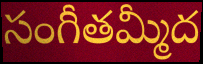
సంగీతమ్మీద